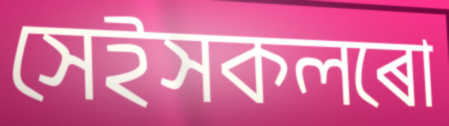
সেইসকলৰো